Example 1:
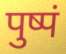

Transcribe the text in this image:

पुष्पं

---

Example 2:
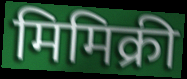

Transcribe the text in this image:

मिमिक्री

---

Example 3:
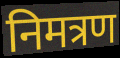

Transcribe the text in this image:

निमत्रण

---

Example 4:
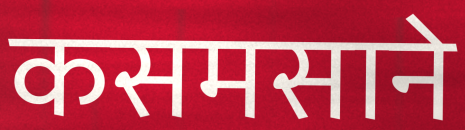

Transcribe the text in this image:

कसमसाने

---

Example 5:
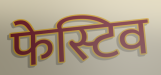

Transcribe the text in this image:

फेस्टिव